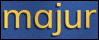
majur